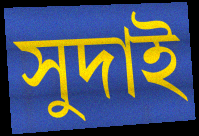
সুদাই